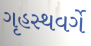
ગૃહસ્થવર્ગે